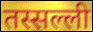
तस्सल्ली